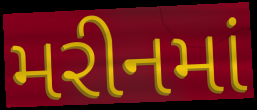
મરીનમાં